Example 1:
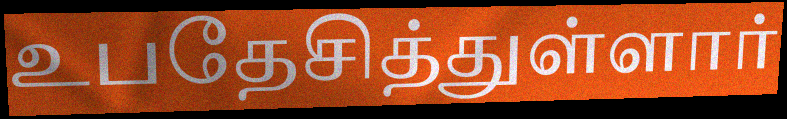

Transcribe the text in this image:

உபதேசித்துள்ளார்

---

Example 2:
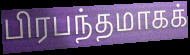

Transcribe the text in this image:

பிரபந்தமாகக்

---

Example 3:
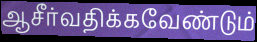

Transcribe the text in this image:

ஆசீர்வதிக்கவேண்டும்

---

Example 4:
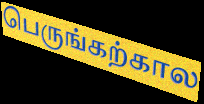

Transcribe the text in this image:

பெருங்கற்கால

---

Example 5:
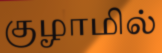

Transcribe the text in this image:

குழாமில்